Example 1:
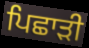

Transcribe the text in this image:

ਪਿਛਾੜੀ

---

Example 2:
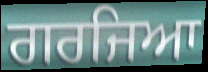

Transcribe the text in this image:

ਗਰਜਿਆ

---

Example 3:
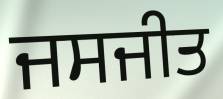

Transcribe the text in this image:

ਜਸਜੀਤ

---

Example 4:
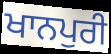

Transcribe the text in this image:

ਖਾਨਪੁਰੀ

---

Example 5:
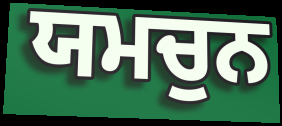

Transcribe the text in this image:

ਯਮਚੁਨ